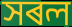
সৰল